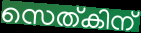
സെത്കിന്